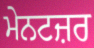
ਮੇਨਟਜ਼ਰ